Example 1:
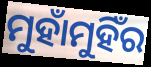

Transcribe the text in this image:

ମୁହାଁମୁହିଁର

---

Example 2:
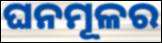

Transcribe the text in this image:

ଘନମୂଳର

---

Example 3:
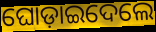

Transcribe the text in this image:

ଘୋଡ଼ାଇଦେଲେ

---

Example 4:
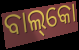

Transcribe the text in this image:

ବାଲ୍‌କୋ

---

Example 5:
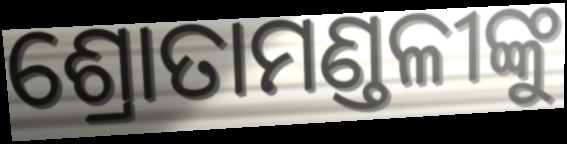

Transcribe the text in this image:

ଶ୍ରୋତାମଣ୍ଡଳୀଙ୍କୁ